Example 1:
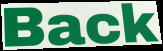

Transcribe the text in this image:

Back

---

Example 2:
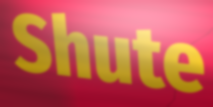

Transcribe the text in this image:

Shute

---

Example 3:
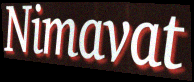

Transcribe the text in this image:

Nimavat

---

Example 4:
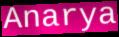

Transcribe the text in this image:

Anarya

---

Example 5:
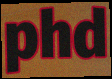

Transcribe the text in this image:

phd